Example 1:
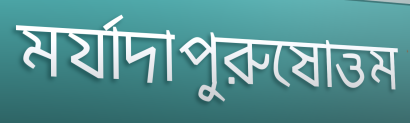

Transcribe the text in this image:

মর্যাদাপুরুষোত্তম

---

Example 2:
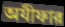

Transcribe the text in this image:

অযীফার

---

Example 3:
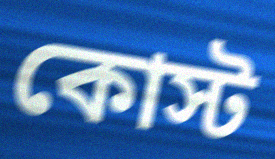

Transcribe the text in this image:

কোস্ট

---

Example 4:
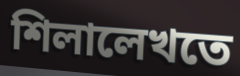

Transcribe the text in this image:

শিলালেখতে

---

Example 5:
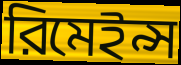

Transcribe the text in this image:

রিমেইন্স